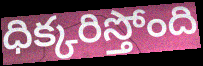
ధిక్కరిస్తోంది